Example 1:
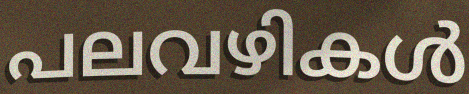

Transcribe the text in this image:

പലവഴികൾ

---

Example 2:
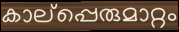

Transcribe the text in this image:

കാല്പ്പെരുമാറ്റം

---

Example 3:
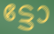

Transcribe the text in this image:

ട്ടോ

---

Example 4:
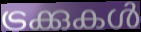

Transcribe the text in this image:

ട്രക്കുകൾ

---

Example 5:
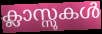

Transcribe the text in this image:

ക്ലാസ്സുകൾ